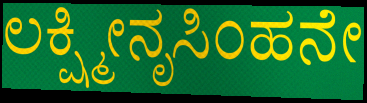
ಲಕ್ಷ್ಮೀನೃಸಿಂಹನೇ